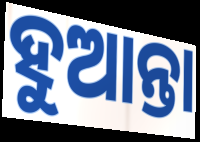
ହୁଆନ୍ତା